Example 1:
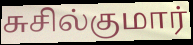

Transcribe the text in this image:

சுசில்குமார்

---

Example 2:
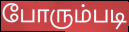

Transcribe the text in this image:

போரும்படி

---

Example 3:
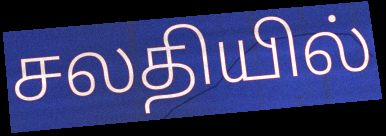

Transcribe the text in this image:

சலதியில்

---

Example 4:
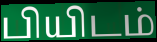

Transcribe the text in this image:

பியிடம்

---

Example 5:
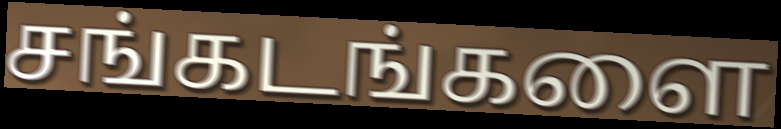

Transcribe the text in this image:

சங்கடங்களை